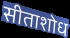
सीताशोध